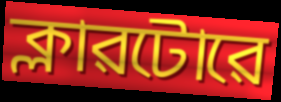
ক্লাৱটোৱে